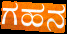
ಗಹನ